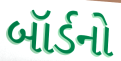
બૉર્ડનો